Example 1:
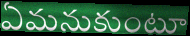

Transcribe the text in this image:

ఏమనుకుంటూ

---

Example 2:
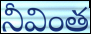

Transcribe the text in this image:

నీవింత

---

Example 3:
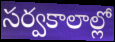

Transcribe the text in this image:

సర్వకాలాల్లో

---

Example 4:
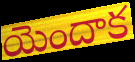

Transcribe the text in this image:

యెందాక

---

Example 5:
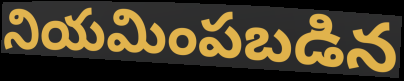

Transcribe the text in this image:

నియమింపబడిన